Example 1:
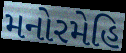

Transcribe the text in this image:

મનોરમેહિ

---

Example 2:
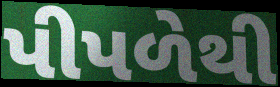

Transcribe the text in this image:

પીપળેથી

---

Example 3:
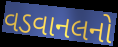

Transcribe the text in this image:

વડવાનલનો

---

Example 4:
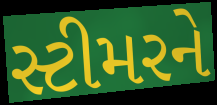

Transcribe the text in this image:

સ્ટીમરને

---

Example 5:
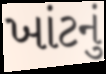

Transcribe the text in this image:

ખાંટનું